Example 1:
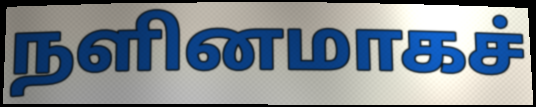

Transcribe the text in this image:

நளினமாகச்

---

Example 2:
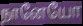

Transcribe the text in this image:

நானேயோ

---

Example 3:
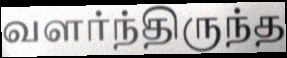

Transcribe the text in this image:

வளர்ந்திருந்த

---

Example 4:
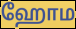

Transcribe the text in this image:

ஹோம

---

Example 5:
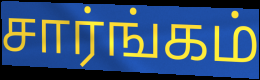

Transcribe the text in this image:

சார்ங்கம்